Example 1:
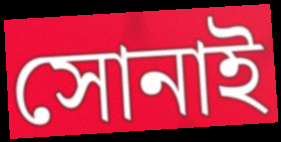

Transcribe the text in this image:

সোনাই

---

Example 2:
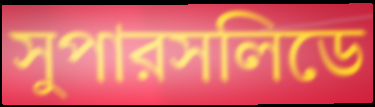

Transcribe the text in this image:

সুপারসলিডে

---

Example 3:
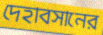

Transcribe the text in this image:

দেহাবসানের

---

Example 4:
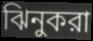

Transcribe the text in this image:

ঝিনুকরা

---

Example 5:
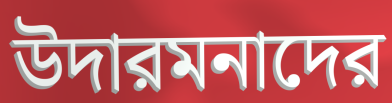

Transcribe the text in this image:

উদারমনাদের